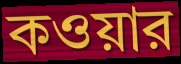
কওয়ার